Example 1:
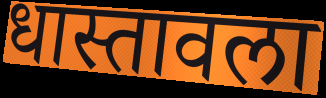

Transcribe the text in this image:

धास्तावला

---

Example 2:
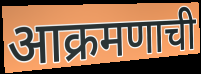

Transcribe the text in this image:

आक्रमणाची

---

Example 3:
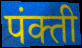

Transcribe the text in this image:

पंक्ती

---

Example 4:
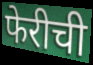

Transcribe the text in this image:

फेरीची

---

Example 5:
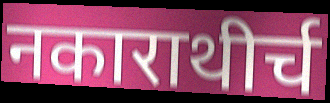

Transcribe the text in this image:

नकाराथीर्च